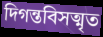
দিগন্তবিসত্মৃত